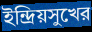
ইন্দ্রিয়সুখের